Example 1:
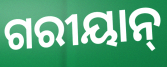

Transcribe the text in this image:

ଗରୀୟାନ୍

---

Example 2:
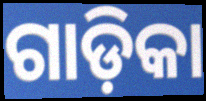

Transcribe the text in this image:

ଗାଡ଼ିକା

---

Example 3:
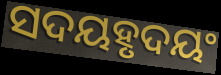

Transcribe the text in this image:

ସଦୟହୃଦୟଂ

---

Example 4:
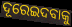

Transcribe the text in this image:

ଦୂରେଇଦବାକୁ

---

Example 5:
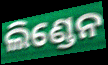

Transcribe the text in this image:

ଲିଣ୍ଡେନ